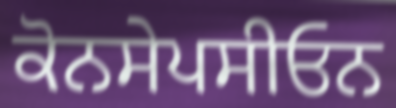
ਕੋਨਸੇਪਸੀਓਨ